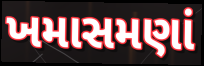
ખમાસમણાં